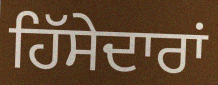
ਹਿੱਸੇਦਾਰਾਂ